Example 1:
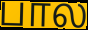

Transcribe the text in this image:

பால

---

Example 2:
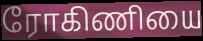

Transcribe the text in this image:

ரோகிணியை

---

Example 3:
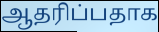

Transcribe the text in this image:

ஆதரிப்பதாக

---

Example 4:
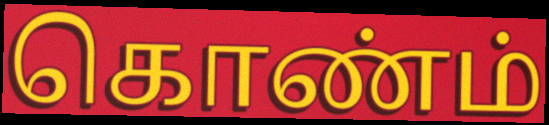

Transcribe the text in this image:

கொண்ம்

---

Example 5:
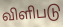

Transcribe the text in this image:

விளிபடு